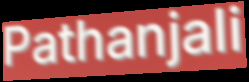
Pathanjali